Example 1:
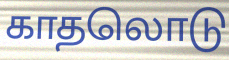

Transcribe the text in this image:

காதலொடு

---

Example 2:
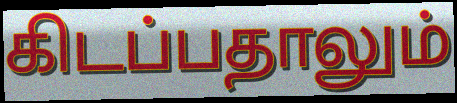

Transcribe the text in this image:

கிடப்பதாலும்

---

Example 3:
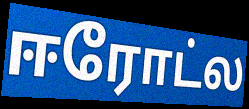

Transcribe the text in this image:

ஈரோட்ல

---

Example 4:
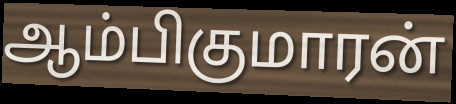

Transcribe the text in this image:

ஆம்பிகுமாரன்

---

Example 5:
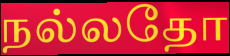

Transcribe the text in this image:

நல்லதோ